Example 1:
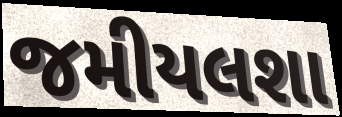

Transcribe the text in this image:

જમીયલશા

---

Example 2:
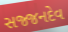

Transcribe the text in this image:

સજ્જનદેવ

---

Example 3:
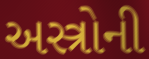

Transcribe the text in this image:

અસ્ત્રોની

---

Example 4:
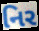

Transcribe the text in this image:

નિર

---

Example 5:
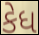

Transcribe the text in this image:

કેધ